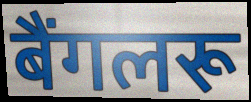
बैंगलरू